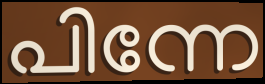
പിന്നേ